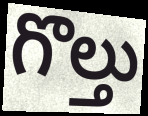
గొల్తు